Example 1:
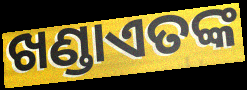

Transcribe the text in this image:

ଖଣ୍ଡାଏତଙ୍କ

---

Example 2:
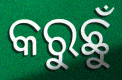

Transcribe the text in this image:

କରୁଛୁଁ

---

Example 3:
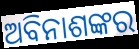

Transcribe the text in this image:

ଅବିନାଶଙ୍କର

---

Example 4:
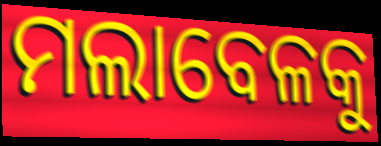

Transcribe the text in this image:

ମଲାବେଳକୁ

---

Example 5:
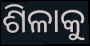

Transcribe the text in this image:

ଶିଳାକୁ